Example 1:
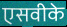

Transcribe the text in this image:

एसवीके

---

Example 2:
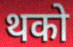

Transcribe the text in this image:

थको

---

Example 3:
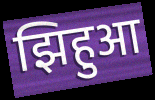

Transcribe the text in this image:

झिहुआ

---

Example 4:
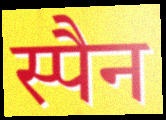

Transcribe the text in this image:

स्पैन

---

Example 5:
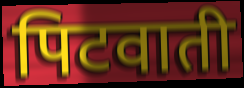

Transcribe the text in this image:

पिटवाती